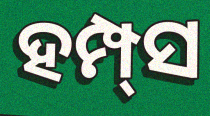
ହମ୍ପ୍‌ସ